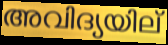
അവിദ്യയില്